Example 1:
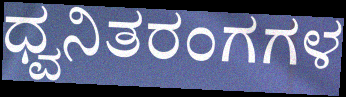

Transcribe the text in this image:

ಧ್ವನಿತರಂಗಗಳ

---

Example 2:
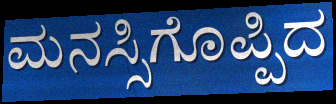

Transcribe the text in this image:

ಮನಸ್ಸಿಗೊಪ್ಪಿದ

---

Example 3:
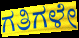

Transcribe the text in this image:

ಗತಿಗಳೇ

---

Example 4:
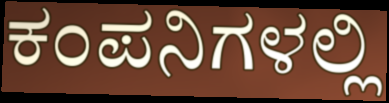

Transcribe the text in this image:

ಕಂಪನಿಗಳಲ್ಲಿ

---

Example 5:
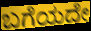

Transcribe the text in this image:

ಬಗೆಯದೇ